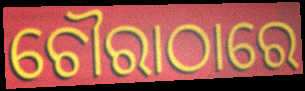
ଚୌରାଠାରେ